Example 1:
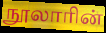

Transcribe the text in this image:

நூலாரின்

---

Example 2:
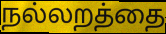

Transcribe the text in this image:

நல்லறத்தை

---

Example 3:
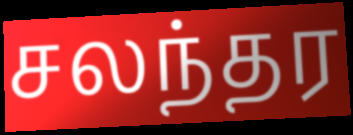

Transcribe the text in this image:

சலந்தர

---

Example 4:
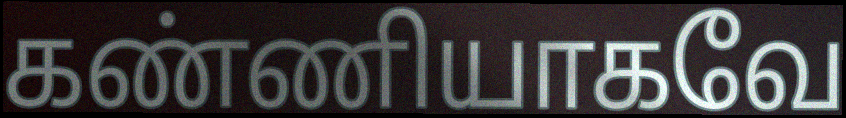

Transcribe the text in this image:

கண்ணியாகவே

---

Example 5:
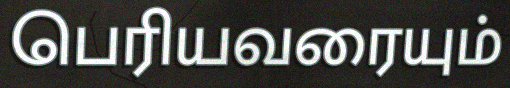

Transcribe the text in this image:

பெரியவரையும்